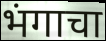
भंगाचा